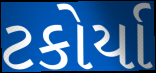
ટકોર્યા